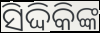
ସିଦ୍ଦିକିଙ୍କ